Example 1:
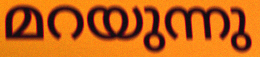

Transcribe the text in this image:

മറയുന്നു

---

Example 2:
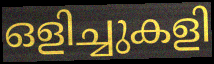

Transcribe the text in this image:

ഒളിച്ചുകളി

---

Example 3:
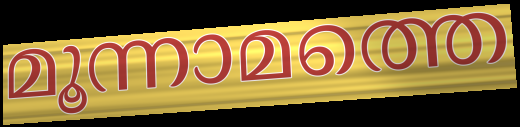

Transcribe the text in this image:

മൂന്നാമത്തെ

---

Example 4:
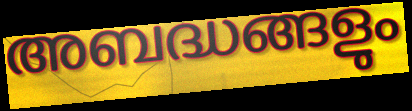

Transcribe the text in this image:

അബദ്ധങ്ങളും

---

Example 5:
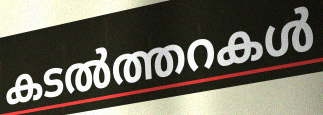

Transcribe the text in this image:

കടൽത്തറകൾ